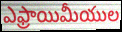
ఎఫ్రాయిమీయుల